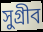
সুগ্রীব